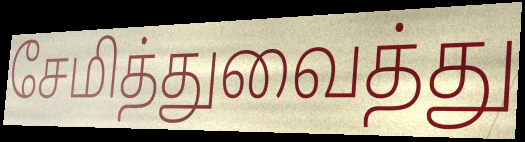
சேமித்துவைத்து